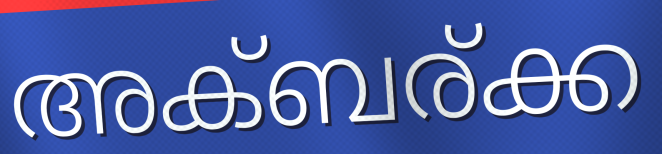
അക്ബര്ക്ക